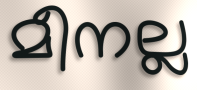
മീനല്ല